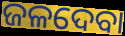
ଜଳଦେବା